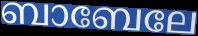
ബാബേലേ